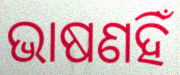
ଭାଷଣହିଁ